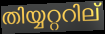
തിയ്യറ്ററില്